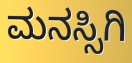
ಮನಸ್ಸಿಗಿ